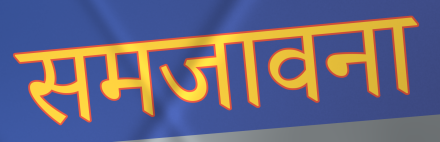
समजावना